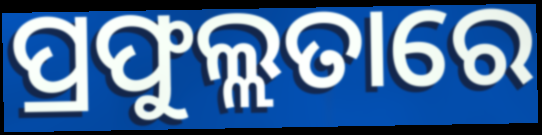
ପ୍ରଫୁଲ୍ଲତାରେ